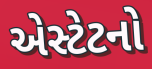
એસ્ટેટનો